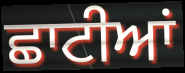
ਛਾਟੀਆਂ